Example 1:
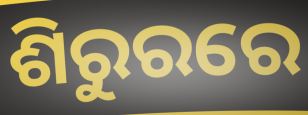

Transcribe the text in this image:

ଶିରୁରରେ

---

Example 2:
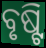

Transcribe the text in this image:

ବୃଷ୍ଟି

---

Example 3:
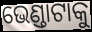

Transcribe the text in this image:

ଭେଣ୍ଡାଟାକୁ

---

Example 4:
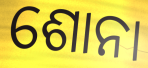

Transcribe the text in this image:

ଶୋନା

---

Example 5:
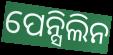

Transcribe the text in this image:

ପେନ୍ସିଲିନ